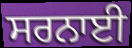
ਸਰਨਾਈ